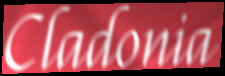
Cladonia